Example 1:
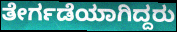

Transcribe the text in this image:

ತೇರ್ಗಡೆಯಾಗಿದ್ದರು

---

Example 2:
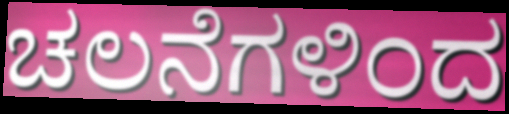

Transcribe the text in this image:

ಚಲನೆಗಳಿಂದ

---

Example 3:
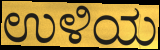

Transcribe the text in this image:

ಉಳಿಯ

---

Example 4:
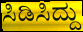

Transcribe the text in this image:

ಸಿಡಿಸಿದ್ದು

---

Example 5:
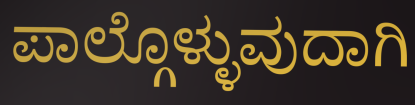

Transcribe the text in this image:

ಪಾಲ್ಗೊಳ್ಳುವುದಾಗಿ